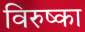
विरुष्का